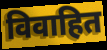
विवाहित